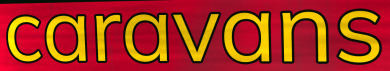
caravans